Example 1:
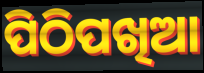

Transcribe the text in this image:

ପିଠିପଖିଆ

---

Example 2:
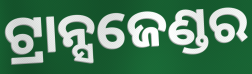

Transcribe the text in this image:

ଟ୍ରାନ୍ସଜେଣ୍ଡର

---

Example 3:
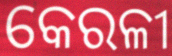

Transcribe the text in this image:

କେରଳୀ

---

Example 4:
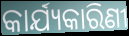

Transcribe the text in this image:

କାର୍ଯ୍ୟକାରିଣୀ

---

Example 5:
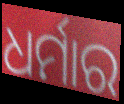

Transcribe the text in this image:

ଧର୍ମାର